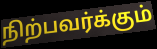
நிற்பவர்க்கும்